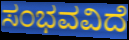
ಸಂಭವವಿದೆ